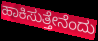
ಹಾಕಿಸುತ್ತೇನೆಂದು